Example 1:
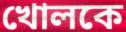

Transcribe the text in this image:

খোলকে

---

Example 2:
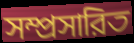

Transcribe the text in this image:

সম্প্রসারিত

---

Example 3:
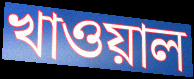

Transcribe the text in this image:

খাওয়াল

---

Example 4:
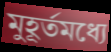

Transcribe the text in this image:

মুহূর্তমধ্যে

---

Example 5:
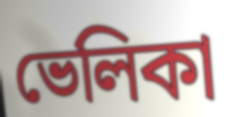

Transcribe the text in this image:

ভেলিকা